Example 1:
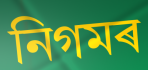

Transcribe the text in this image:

নিগমৰ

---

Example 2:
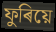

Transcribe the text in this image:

ফুৰিয়ে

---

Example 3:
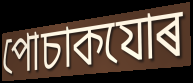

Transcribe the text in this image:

পোচাকযোৰ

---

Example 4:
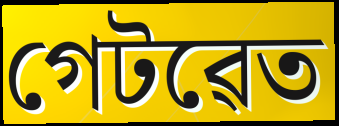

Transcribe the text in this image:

গেটৱেত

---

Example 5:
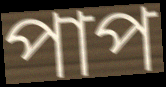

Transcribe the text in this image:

পাপ